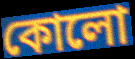
কোলো